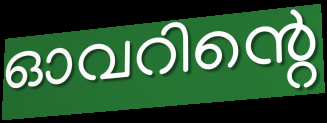
ഓവറിന്റെ